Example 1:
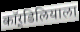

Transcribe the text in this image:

कॉर्डिलियाला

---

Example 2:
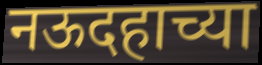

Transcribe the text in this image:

नऊदहाच्या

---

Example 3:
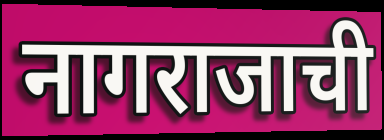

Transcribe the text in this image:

नागराजाची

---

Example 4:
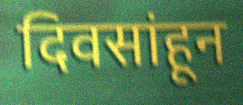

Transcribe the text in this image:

दिवसांहून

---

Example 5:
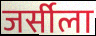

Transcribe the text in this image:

जर्सीला